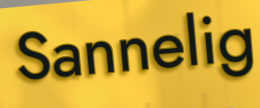
Sannelig